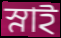
স্নাই